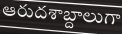
ఆరుదశాబ్దాలుగా